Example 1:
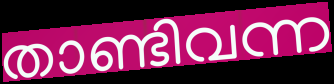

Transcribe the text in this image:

താണ്ടിവന്ന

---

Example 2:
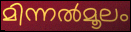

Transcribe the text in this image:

മിന്നൽമൂലം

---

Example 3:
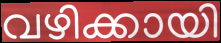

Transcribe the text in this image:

വഴിക്കായി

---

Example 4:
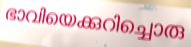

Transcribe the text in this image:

ഭാവിയെക്കുറിച്ചൊരു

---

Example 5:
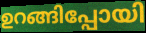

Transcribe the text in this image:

ഉറങ്ങിപ്പോയി